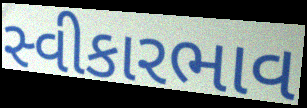
સ્વીકારભાવ